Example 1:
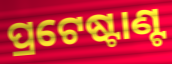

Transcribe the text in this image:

ପ୍ରଟେଷ୍ଟାଣ୍ଟ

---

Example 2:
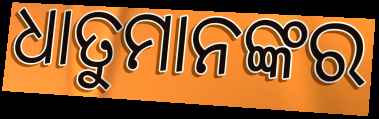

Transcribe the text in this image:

ଧାତୁମାନଙ୍କର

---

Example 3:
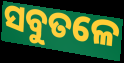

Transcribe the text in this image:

ସବୁତଳେ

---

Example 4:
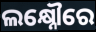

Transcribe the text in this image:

ଲକ୍ଷ୍ନୌରେ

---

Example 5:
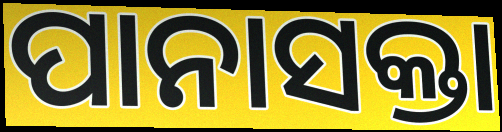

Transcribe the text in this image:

ପାନାସକ୍ତା